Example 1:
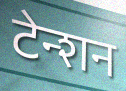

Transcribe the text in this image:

टेन्शन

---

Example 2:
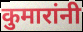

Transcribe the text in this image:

कुमारांनी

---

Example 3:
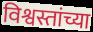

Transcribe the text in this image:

विश्वस्तांच्या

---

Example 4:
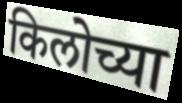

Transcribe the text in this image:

किलोच्या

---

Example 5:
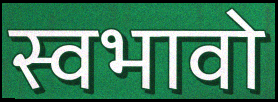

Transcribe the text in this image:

स्वभावो